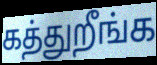
கத்துறீங்க